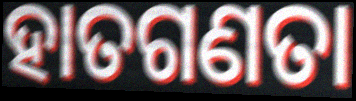
ହାତଗଣତା